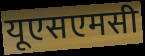
यूएसएमसी